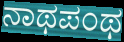
ನಾಥಪಂಥ